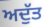
ਅਦੁੱਤ